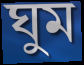
ঘুম